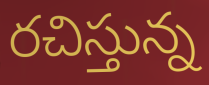
రచిస్తున్న